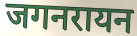
जगनरायन